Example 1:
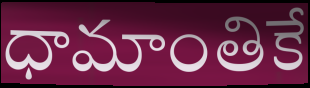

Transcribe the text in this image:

ధామాంతికే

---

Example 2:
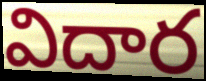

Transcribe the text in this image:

విదార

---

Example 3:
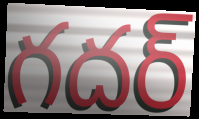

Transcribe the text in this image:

గదర్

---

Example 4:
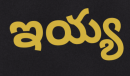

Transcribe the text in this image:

ఇయ్య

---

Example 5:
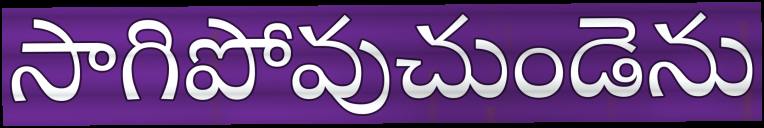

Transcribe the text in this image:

సాగిపోవుచుండెను